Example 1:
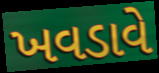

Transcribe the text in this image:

ખવડાવે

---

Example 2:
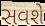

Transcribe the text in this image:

સવશે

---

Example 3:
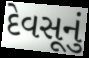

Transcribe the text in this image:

દેવસૂનું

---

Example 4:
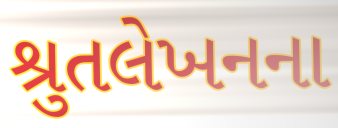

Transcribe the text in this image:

શ્રુતલેખનના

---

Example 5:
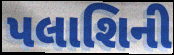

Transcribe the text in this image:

પલાશિની